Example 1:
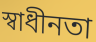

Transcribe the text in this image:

স্বাধীনতা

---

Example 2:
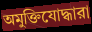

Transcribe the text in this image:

অমুক্তিযোদ্ধারা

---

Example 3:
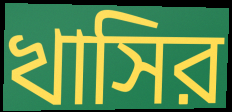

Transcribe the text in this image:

খাসির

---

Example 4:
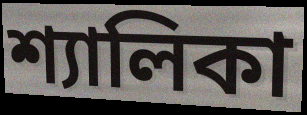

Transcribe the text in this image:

শ্যালিকা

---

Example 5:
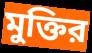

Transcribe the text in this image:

মুক্তির